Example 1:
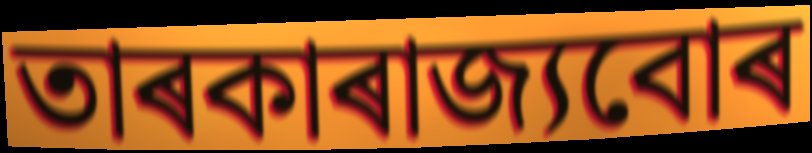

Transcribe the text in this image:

তাৰকাৰাজ্যবোৰ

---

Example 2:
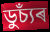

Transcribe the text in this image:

ডুচ্যঁৰ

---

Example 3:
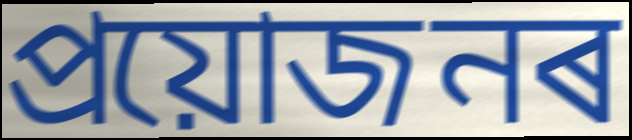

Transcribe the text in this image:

প্ৰয়োজনৰ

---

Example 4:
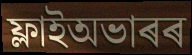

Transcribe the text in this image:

ফ্লাইঅভাৰৰ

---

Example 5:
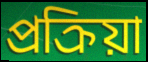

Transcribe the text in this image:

প্ৰক্ৰিয়া